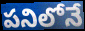
పనిలోనే